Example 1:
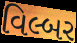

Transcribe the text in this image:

વિલ્બર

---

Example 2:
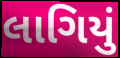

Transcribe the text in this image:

લાગિયું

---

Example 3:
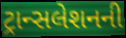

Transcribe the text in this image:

ટ્રાન્સલેશનની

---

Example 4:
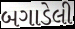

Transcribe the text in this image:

બગાડેલી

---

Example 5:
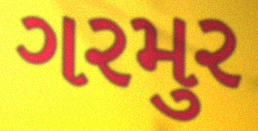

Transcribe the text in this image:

ગરમુર